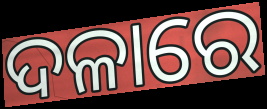
ଦଳାରେ